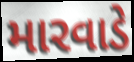
મારવાડે